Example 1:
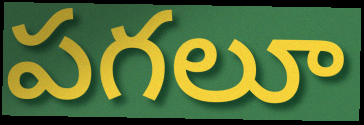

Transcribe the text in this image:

పగలూ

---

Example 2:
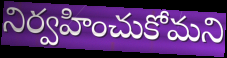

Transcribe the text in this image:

నిర్వహించుకోమని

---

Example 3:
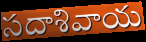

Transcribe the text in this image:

సదాశివాయ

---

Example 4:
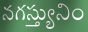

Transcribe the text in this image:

నగస్త్యునిం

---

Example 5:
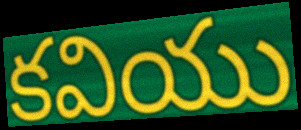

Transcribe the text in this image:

కవియు